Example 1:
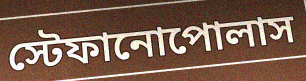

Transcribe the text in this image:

স্টেফানোপোলাস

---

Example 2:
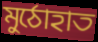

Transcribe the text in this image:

মুঠোহাত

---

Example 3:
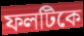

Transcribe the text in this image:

ফলটিকে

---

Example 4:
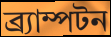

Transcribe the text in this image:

ব্র্যাম্পটন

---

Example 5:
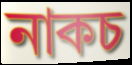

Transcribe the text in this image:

নাকচ